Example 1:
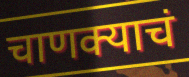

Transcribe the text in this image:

चाणक्याचं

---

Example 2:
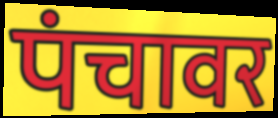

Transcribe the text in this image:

पंचावर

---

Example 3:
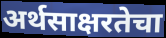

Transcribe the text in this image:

अर्थसाक्षरतेचा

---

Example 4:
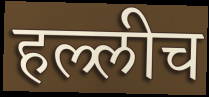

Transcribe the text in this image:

हल्लीच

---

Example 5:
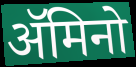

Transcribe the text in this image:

ॲमिनो